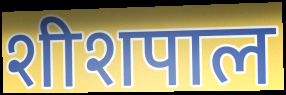
शीशपाल